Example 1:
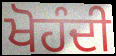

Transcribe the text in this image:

ਖੋਹੰਦੀ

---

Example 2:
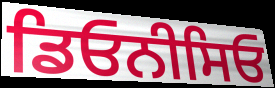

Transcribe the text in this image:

ਡਿਓਨੀਸਿਓ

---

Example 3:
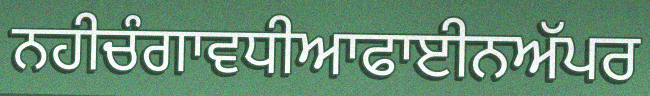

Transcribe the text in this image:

ਨਹੀਚੰਗਾਵਧੀਆਫਾਈਨਅੱਪਰ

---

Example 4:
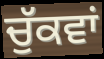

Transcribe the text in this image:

ਚੁੱਕਵਾਂ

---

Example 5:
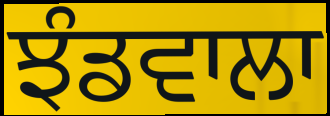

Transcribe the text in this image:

ਝੰਡਵਾਲਾ